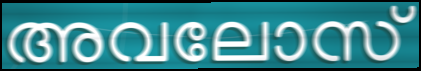
അവലോസ്